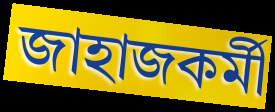
জাহাজকর্মী